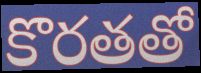
కొరతతో